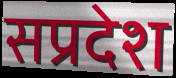
सप्रदेश